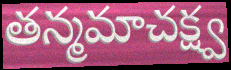
తన్మమాచక్ష్వ